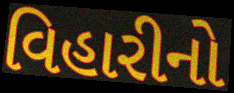
વિહારીનો